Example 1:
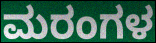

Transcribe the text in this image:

ಮರಂಗಳ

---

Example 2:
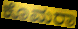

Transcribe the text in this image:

ಕೊಮರಾ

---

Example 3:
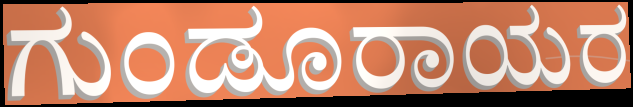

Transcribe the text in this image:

ಗುಂಡೂರಾಯರ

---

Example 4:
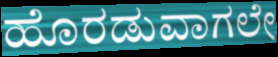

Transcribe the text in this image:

ಹೊರಡುವಾಗಲೇ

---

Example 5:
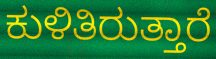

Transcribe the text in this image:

ಕುಳಿತಿರುತ್ತಾರೆ